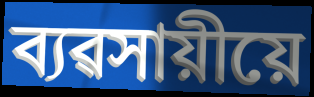
ব্যৱসায়ীয়ে